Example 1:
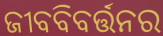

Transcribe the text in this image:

ଜୀବବିବର୍ତ୍ତନର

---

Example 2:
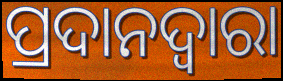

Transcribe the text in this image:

ପ୍ରଦାନଦ୍ୱାରା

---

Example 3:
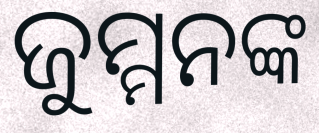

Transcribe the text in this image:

ଜୁମ୍ମନଙ୍କ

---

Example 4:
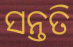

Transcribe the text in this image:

ସନ୍ତତି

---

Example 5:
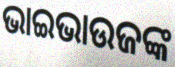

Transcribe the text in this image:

ଭାଇଭାଉଜଙ୍କ